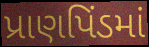
પ્રાણપિંડમાં